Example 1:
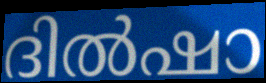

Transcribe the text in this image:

ദിൽഷാ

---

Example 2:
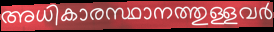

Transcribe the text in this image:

അധികാരസ്ഥാനത്തുള്ളവർ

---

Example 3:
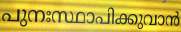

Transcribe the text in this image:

പുനഃസ്ഥാപിക്കുവാൻ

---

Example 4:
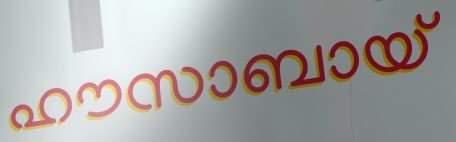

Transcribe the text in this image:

ഹൗസാബായ്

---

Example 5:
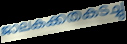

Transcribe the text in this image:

ജാലകക്കതകടച്ചു